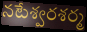
నటేశ్వరశర్మ